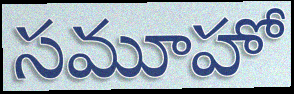
సమూహో